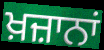
ਖ਼ਜ਼ਾਨਾਂ